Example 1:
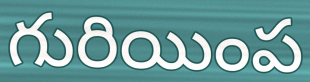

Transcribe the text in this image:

గురియింప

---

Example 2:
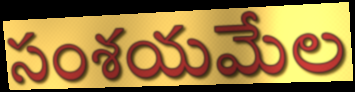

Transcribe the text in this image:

సంశయమేల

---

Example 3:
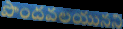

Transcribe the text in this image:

పొందవలయునని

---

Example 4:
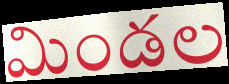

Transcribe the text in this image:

మిండల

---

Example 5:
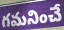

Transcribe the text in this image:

గమనించే